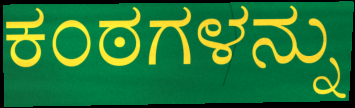
ಕಂಠಗಳನ್ನು